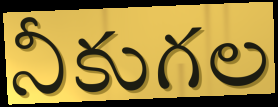
నీకుగల